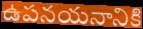
ఉపనయనానికి